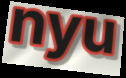
nyu